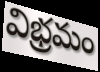
విభ్రమం